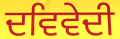
ਦਵਿਵੇਦੀ